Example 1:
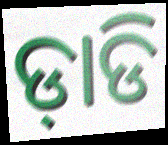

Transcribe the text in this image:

ଡ଼ାଡି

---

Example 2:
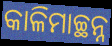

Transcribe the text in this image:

କାଳିମାଚ୍ଛନ୍ନ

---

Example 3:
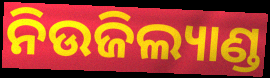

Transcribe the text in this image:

ନିଉଜିଲ୍ୟାଣ୍ଡ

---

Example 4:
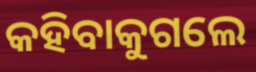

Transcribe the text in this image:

କହିବାକୁଗଲେ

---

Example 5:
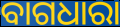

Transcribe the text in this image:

ବାଗଧାରା